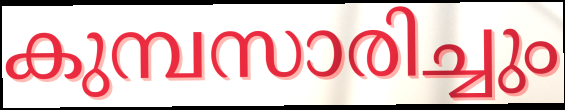
കുമ്പസാരിച്ചും